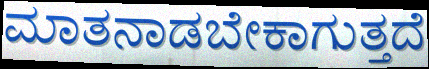
ಮಾತನಾಡಬೇಕಾಗುತ್ತದೆ